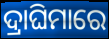
ଦ୍ରାଘିମାରେ